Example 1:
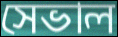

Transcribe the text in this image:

সেভাল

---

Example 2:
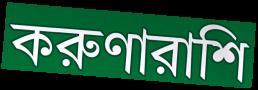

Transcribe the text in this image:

করুণারাশি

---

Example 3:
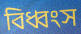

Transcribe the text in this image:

বিধ্বংস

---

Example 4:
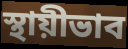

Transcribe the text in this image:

স্থায়ীভাব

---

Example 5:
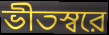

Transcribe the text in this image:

ভীতস্বরে